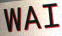
WAI